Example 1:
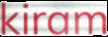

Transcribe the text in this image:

kiram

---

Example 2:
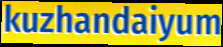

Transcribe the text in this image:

kuzhandaiyum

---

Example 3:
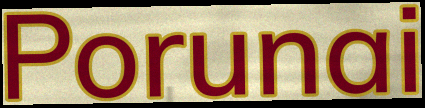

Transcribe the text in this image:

Porunai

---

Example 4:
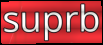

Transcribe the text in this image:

suprb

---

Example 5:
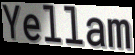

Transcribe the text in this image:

Yellam